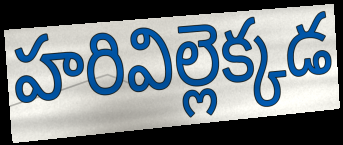
హరివిల్లెక్కడ